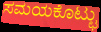
ಸಮಯಕೊಟ್ಟು